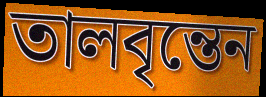
তালবৃন্তেন